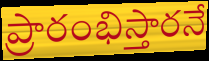
ప్రారంభిస్తారనే